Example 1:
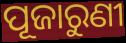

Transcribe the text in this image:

ପୂଜାରୁଣୀ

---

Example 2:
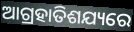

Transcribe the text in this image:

ଆଗ୍ରହାତିଶଯ୍ୟରେ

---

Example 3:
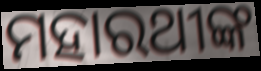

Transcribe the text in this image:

ମହାରଥୀଙ୍କ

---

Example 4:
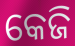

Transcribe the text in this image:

କେଜି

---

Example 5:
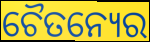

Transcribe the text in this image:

ଚୈତନ୍ୟେର